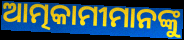
ଆତ୍ମକାମୀମାନଙ୍କୁ